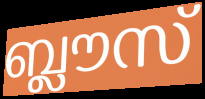
ബ്ലൗസ്